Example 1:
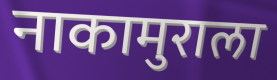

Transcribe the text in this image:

नाकामुराला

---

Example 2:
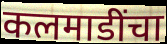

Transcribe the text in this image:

कलमाडींचा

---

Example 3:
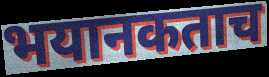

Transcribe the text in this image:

भयानकताच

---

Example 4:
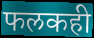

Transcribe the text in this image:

फलकही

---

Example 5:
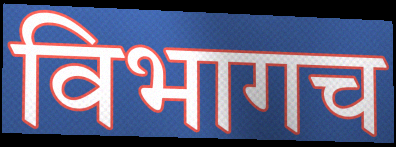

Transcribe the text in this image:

विभागच